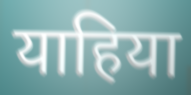
याहिया